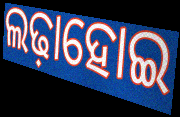
ଲଢ଼ାହୋଇ